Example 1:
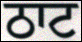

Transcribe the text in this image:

ਠਾਟ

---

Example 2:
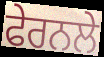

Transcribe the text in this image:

ਫੇਰਨਲੇ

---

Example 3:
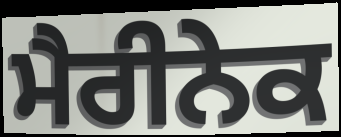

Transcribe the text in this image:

ਮੈਰੀਨੇਕ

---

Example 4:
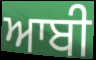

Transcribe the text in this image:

ਆਬੀ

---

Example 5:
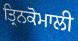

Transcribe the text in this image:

ਤ੍ਰਿਨਕੋਮਾਲੀ